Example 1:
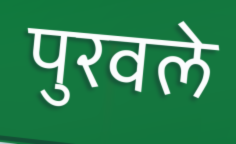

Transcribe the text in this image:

पुरवले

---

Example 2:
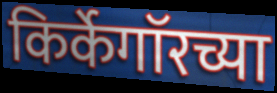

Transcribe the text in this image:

किर्केगॉरच्या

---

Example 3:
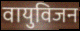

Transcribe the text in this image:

वायुविजन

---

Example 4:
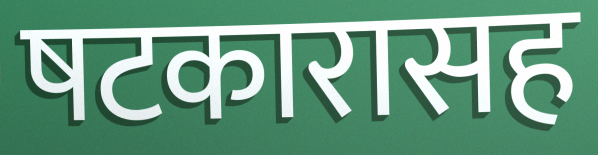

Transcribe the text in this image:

षटकारासह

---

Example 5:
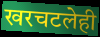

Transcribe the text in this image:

खरचटलेही